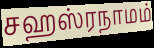
சஹஸ்ரநாமம்